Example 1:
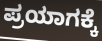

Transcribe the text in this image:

ಪ್ರಯಾಗಕ್ಕೆ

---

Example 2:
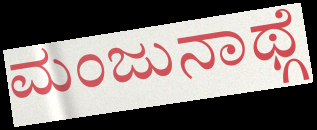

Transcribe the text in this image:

ಮಂಜುನಾಥ್ಗೆ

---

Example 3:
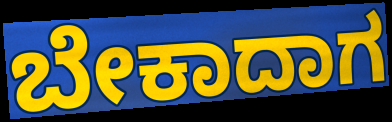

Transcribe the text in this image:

ಬೇಕಾದಾಗ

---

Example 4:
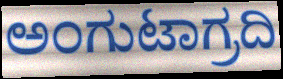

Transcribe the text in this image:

ಅಂಗುಟಾಗ್ರದಿ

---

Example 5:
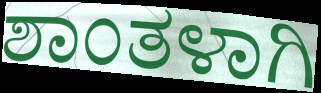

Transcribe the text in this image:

ಶಾಂತಳಾಗಿ